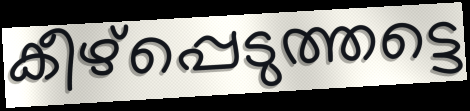
കീഴ്പ്പെടുത്തട്ടെ